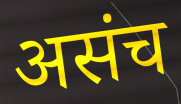
असंच